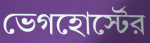
ভেগহোর্স্টের